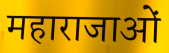
महाराजाओं